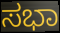
ಸಭಾ